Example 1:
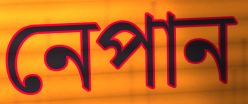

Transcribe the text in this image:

নেপান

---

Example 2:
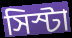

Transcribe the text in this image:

সিস্টা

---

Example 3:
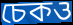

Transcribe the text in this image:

চেকও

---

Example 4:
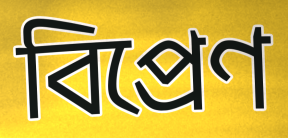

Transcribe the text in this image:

বিপ্রেণ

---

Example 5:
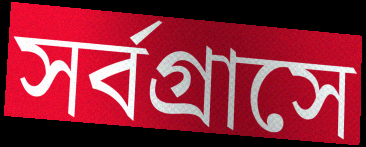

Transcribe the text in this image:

সর্বগ্রাসে